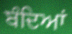
ਬੰਦਿਆਂ